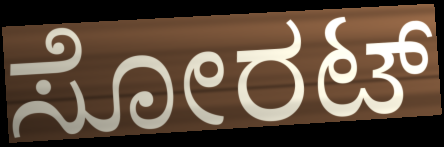
ಸೋರಟ್